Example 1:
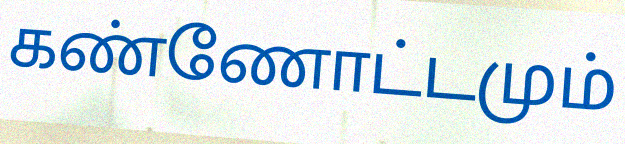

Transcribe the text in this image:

கண்ணோட்டமும்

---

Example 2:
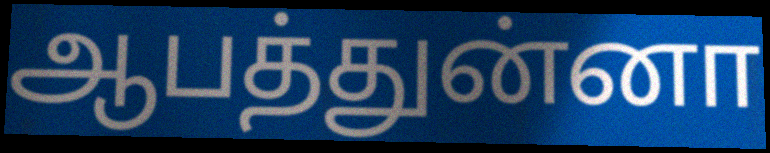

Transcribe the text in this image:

ஆபத்துன்னா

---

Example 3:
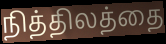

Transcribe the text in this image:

நித்திலத்தை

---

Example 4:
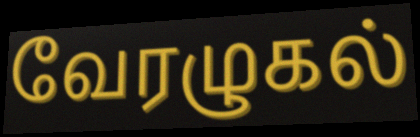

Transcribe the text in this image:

வேரழுகல்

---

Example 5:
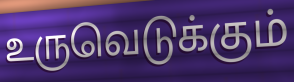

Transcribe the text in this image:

உருவெடுக்கும்